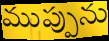
ముప్పును